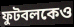
ফুটবলকেও